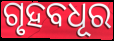
ଗୃହବଧୂର